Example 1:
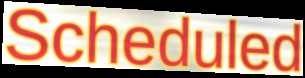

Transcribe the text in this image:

Scheduled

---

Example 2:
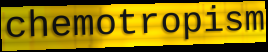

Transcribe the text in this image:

chemotropism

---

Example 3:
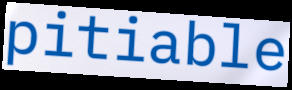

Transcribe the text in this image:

pitiable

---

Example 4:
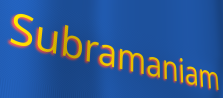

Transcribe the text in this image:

Subramaniam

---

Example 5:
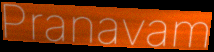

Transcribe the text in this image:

Pranavam